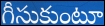
గీసుకుంటూ